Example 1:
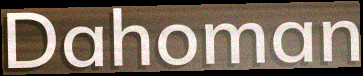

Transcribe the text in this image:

Dahoman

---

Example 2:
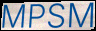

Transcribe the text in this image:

MPSM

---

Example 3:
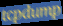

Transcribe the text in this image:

tcpdump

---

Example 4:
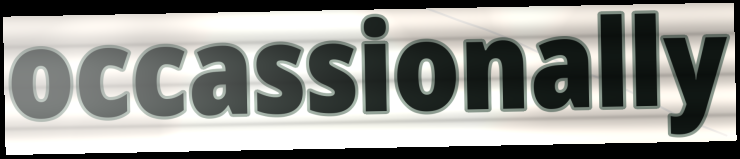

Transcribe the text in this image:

occassionally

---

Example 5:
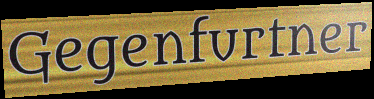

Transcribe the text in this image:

Gegenfurtner